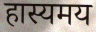
हास्यमय